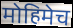
मोहिमेच